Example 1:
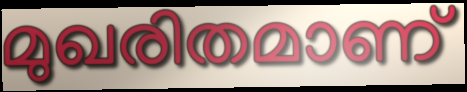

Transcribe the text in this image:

മുഖരിതമാണ്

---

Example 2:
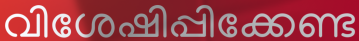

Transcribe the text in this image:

വിശേഷിപ്പിക്കേണ്ട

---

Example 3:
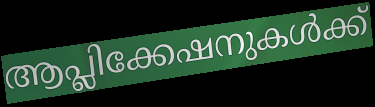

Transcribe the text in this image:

ആപ്ലിക്കേഷനുകൾക്ക്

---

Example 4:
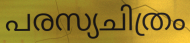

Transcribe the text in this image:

പരസ്യചിത്രം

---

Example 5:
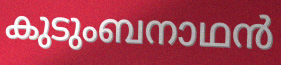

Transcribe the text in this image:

കുടുംബനാഥൻ